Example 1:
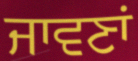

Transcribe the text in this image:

ਜਾਵਣਾਂ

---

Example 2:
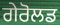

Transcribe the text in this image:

ਗੇਰੋਲਡ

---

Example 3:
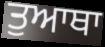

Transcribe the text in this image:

ਤੁਆਥਾ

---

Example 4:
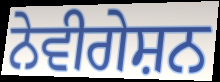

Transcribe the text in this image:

ਨੇਵੀਗੇਸ਼ਨ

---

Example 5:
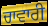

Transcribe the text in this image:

ਚਾਵਾਰੀ